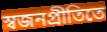
স্বজনপ্রীতিতে